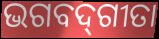
ଭଗବଦ୍‌ଗୀତା